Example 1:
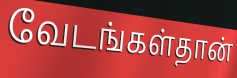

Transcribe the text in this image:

வேடங்கள்தான்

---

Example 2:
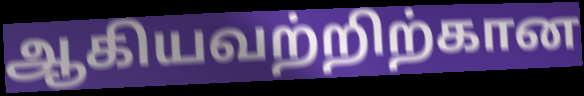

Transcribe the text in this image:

ஆகியவற்றிற்கான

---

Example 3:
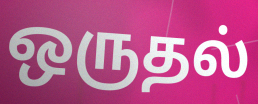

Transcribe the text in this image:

ஒருதல்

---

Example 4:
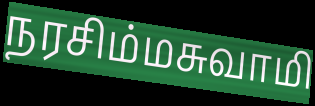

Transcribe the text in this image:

நரசிம்மசுவாமி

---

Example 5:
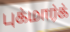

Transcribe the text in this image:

புக்மார்க்